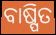
ବାଷ୍ପିତ